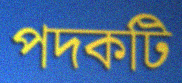
পদকটি